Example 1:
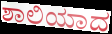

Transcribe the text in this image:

ಶಾಲಿಯಾದ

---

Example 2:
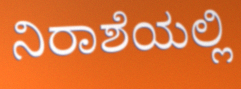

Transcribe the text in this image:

ನಿರಾಶೆಯಲ್ಲಿ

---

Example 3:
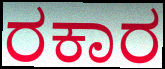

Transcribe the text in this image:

ರಕಾರ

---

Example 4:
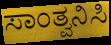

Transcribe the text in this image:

ಸಾಂತ್ವನಿಸಿ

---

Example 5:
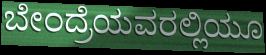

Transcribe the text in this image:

ಬೇಂದ್ರೆಯವರಲ್ಲಿಯೂ